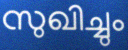
സുഖിച്ചും